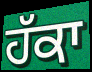
ਹੱਕਾ